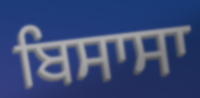
ਬਿਸਾਸਾ